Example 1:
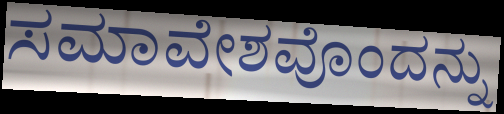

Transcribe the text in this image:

ಸಮಾವೇಶವೊಂದನ್ನು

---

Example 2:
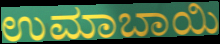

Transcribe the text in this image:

ಉಮಾಬಾಯಿ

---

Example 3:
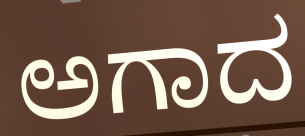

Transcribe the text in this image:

ಅಗಾದ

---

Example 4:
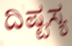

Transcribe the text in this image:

ದಿಷ್ಟಸ್ಯ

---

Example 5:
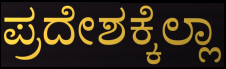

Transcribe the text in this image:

ಪ್ರದೇಶಕ್ಕೆಲ್ಲಾ